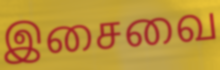
இசைவை